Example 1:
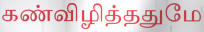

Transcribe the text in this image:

கண்விழித்ததுமே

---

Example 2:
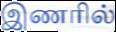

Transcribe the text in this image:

இணரில்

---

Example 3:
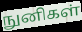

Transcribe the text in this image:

நுனிகள்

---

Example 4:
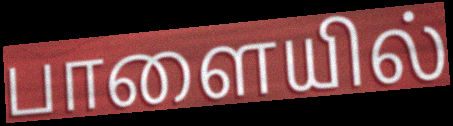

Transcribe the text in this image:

பாளையில்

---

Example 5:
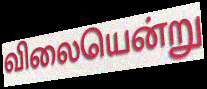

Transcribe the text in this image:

விலையென்று